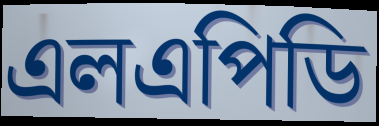
এলএপিডি